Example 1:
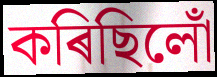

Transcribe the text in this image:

কৰিছিলোঁ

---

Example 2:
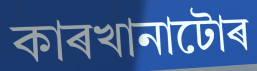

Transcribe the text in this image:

কাৰখানাটোৰ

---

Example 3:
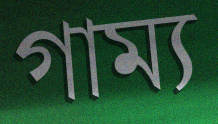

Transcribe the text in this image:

গাম্য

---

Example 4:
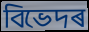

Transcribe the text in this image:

বিভেদৰ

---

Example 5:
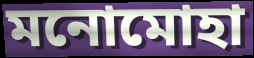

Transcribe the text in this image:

মনোমোহা